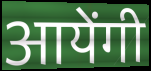
आयेंगी